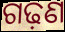
ଗଢ଼ଣ